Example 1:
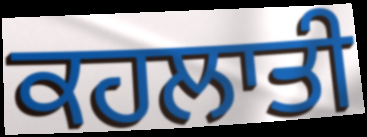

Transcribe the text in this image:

ਕਹਲਾਤੀ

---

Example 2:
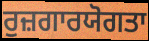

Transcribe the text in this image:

ਰੁਜ਼ਗਾਰਯੋਗਤਾ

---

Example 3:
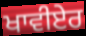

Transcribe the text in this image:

ਖਾਵੀਏਰ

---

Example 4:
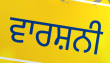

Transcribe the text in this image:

ਵਾਰਸ਼ਨੀ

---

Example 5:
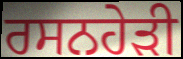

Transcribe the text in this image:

ਰਸਨਹੇੜੀ